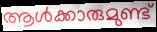
ആൾക്കാരുമുണ്ട്